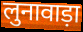
लुनावाड़ा